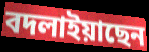
বদলাইয়াছেন